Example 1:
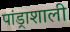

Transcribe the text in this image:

पांड्राशाली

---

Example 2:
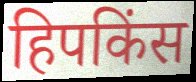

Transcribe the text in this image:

हिपकिंस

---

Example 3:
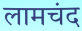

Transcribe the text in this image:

लामचंद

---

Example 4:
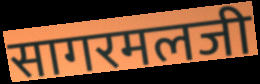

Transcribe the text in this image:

सागरमलजी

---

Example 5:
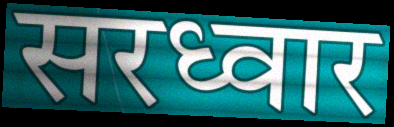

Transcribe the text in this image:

सरध्वार